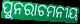
ପୁନରାଚମନୀୟ